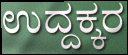
ಉದ್ದಕ್ಕರ